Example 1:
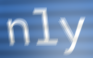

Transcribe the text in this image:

nly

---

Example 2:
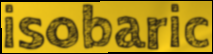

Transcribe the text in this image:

isobaric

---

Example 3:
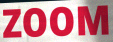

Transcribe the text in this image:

ZOOM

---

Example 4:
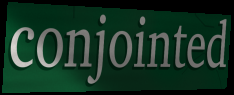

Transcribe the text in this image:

conjointed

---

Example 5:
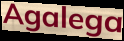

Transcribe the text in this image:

Agalega